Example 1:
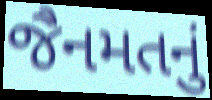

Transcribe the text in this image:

જૈનમતનું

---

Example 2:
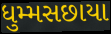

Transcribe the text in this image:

ધુમ્મસછાયા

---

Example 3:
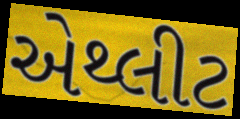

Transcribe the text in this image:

એથ્લીટ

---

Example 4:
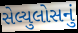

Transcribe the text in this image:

સેલ્યુલોસનું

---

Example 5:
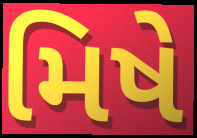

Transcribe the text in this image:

મિષે